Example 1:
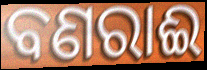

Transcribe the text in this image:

ବଣରାଈ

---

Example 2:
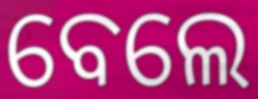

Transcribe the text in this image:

ବେଲେ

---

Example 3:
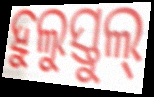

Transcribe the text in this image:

ହୁଲୁସ୍ତୁଲ୍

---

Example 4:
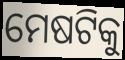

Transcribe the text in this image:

ମେଷଟିକୁ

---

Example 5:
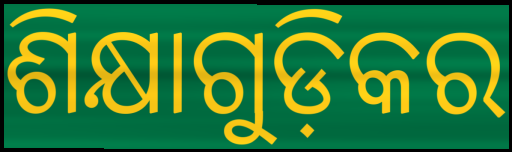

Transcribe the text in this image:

ଶିକ୍ଷାଗୁଡ଼ିକର